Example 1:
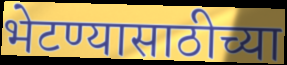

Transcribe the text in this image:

भेटण्यासाठीच्या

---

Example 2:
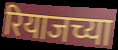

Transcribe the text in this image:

रियाजच्या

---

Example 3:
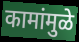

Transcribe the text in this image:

कामांमुळे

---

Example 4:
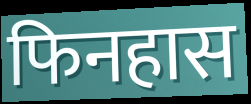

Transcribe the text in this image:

फिनहास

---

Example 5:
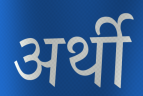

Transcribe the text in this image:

अर्थी